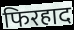
फिरहाद